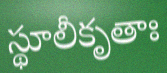
స్థూలీకృతాః